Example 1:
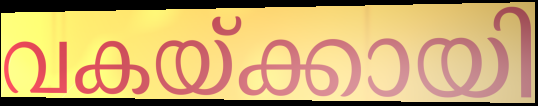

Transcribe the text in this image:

വകയ്ക്കായി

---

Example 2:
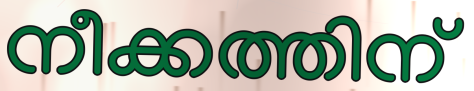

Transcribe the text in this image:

നീക്കത്തിന്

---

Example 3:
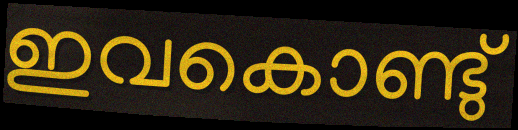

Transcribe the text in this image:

ഇവകൊണ്ടു്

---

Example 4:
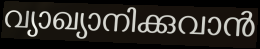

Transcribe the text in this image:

വ്യാഖ്യാനിക്കുവാൻ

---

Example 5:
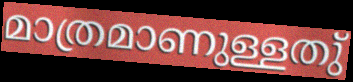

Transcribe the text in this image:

മാത്രമാണുള്ളതു്